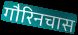
गौरिनचास